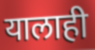
यालाही